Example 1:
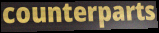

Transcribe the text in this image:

counterparts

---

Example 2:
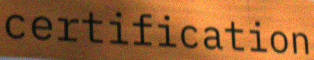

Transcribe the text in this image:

certification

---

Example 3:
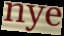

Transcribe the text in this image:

nye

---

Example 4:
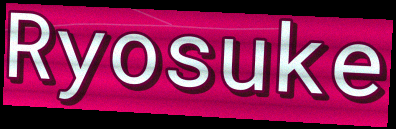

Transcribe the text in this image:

Ryosuke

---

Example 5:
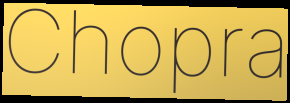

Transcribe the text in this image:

Chopra